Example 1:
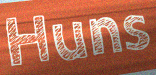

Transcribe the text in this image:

Huns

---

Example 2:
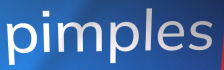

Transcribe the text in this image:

pimples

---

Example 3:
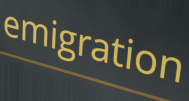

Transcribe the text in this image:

emigration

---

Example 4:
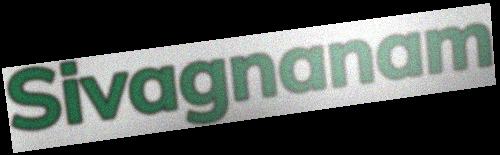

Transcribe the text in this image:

Sivagnanam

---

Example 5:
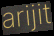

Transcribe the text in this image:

arijit